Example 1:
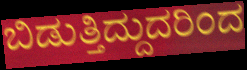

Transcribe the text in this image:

ಬಿಡುತ್ತಿದ್ದುದರಿಂದ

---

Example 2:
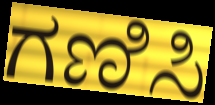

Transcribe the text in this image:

ಗಣಿಸಿ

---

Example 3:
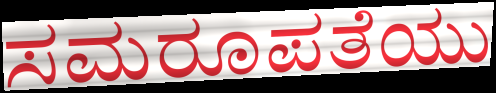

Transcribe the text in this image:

ಸಮರೂಪತೆಯು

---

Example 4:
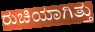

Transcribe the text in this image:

ರುಚಿಯಾಗಿತ್ತು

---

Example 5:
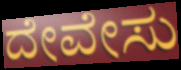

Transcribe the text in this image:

ದೇವೇಸು